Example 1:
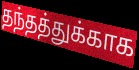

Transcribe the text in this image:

தந்தத்துக்காக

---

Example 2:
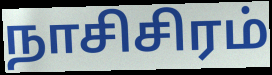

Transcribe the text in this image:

நாசிசிரம்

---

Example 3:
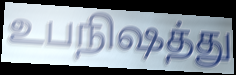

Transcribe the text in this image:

உபநிஷத்து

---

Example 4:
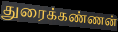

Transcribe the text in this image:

துரைக்கண்ணன்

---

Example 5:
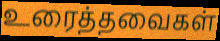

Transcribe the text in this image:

உரைத்தவைகள்